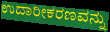
ಉದಾರೀಕರಣವನ್ನು